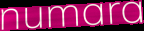
numara